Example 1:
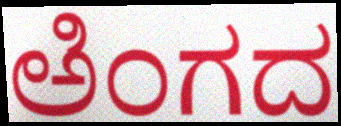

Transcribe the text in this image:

ಅಿಂಗದ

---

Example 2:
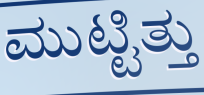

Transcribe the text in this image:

ಮುಟ್ಟಿತ್ತು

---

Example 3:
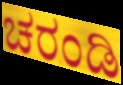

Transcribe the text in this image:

ಚರಂಡಿ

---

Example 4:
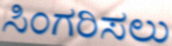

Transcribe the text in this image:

ಸಿಂಗರಿಸಲು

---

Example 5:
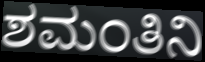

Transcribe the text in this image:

ಶಮಂತಿನಿ